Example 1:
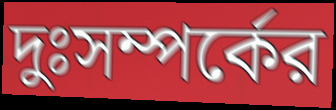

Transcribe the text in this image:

দুঃসম্পর্কের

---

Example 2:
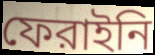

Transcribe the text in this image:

ফেরাইনি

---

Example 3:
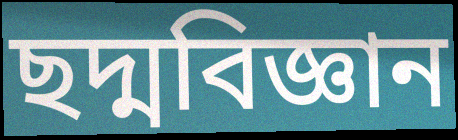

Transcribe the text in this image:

ছদ্মবিজ্ঞান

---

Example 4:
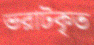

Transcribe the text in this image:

ভরাটকৃত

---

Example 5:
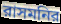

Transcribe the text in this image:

রাসমনির